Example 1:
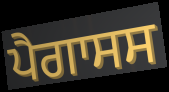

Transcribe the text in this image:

ਪੈਗਾਸਸ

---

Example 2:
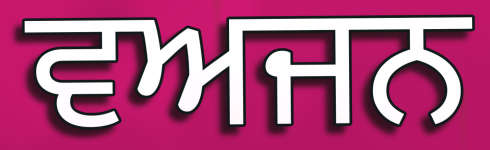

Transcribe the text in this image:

ਵਅਜਨ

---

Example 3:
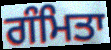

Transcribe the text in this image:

ਗੰਮਿਤਾ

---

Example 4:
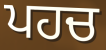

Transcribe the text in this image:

ਪਹਚ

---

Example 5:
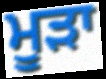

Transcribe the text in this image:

ਮੂੜਾ